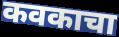
कवकाचा